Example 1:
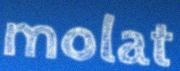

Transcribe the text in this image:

molat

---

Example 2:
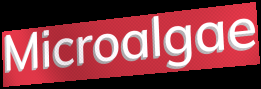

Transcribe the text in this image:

Microalgae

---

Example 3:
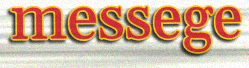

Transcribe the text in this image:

messege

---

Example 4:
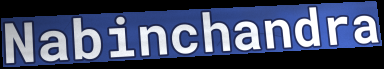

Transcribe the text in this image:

Nabinchandra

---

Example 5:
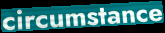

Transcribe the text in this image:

circumstance